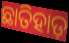
ଛାତିହାଡ଼